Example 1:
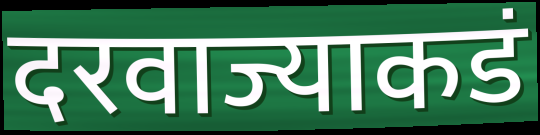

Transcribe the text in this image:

दरवाज्याकडं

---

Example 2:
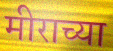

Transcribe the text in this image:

मीराच्या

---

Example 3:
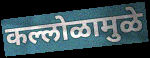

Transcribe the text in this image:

कल्लोळामुळे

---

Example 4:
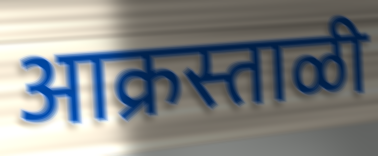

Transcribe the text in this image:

आक्रस्ताळी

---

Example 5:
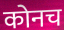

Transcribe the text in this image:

कोनच